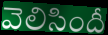
వెలిసిందీ